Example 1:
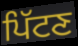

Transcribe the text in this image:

ਪਿੱਟਣ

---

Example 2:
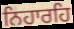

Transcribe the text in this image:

ਨਿਹਾਰਹਿ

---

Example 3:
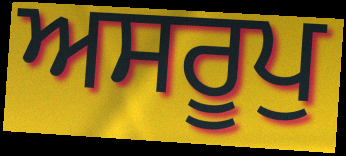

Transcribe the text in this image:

ਅਸਰੂਪੁ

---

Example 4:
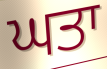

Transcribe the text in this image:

ਘਤਾ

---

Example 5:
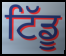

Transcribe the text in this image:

ਟਿੱਡੂ